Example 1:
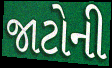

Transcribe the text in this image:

જાટોની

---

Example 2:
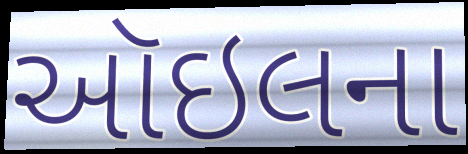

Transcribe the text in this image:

ઑઇલના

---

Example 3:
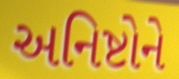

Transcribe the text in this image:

અનિષ્ટોને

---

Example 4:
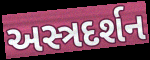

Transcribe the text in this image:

અસ્ત્રદર્શન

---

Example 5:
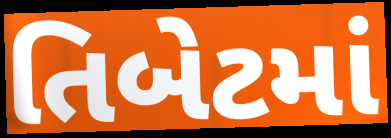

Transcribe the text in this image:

તિબેટમાં